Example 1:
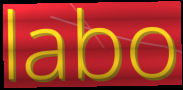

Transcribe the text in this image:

labo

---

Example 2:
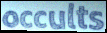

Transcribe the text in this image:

occults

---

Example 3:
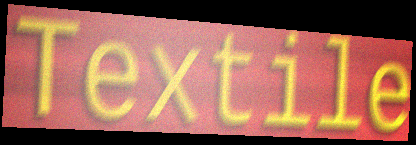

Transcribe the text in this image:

Textile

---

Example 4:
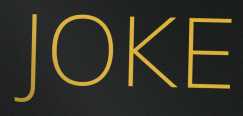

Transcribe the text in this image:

JOKE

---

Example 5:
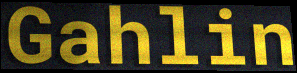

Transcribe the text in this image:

Gahlin